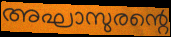
അഘാസുരന്റെ